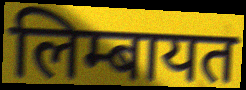
लिम्बायत